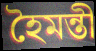
হৈমন্তী